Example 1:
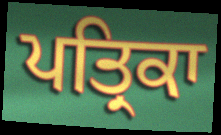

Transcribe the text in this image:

ਪਤ੍ਰਿਕਾ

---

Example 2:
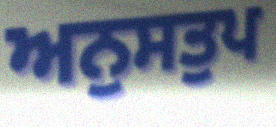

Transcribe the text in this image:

ਅਨੁਸਤੁਪ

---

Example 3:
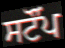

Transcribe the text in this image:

ਸਟੌਂਪ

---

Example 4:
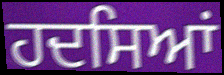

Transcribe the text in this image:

ਹਦਸਿਆਂ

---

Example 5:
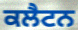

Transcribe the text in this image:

ਕਲੈਟਨ